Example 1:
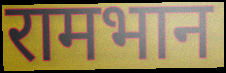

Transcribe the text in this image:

रामभान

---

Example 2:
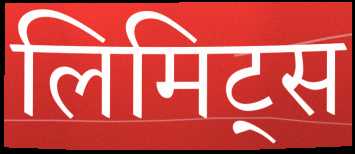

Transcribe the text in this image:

लिमिट्स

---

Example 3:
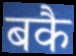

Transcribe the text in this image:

बकै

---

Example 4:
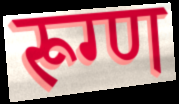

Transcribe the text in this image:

रूग्ण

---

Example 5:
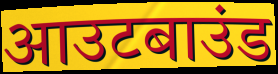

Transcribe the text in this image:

आउटबाउंड